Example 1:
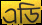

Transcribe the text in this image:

এডি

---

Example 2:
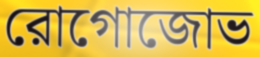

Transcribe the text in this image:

রোগোজোভ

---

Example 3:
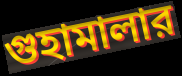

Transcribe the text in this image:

গুহামালার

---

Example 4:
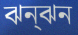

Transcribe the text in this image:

ঝন্ঝন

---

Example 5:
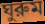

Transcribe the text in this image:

ঘুরুম